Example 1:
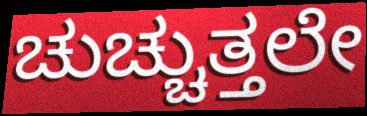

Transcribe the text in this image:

ಚುಚ್ಚುತ್ತಲೇ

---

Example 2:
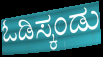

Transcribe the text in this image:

ಓಡಿಸ್ಕಂಡು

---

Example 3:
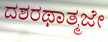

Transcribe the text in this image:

ದಶರಥಾತ್ಮಜೇ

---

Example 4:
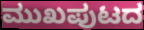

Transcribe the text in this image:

ಮುಖಪುಟದ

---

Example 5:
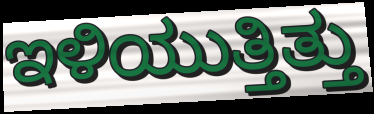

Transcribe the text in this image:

ಇಳಿಯುತ್ತಿತ್ತು